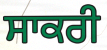
ਸਾਕਰੀ